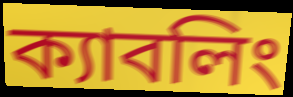
ক্যাবলিং